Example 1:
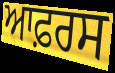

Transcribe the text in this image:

ਆਫ਼ਰਸ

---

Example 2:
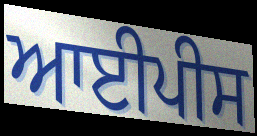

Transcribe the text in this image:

ਆਈਪੀਸ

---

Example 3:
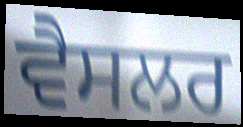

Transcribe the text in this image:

ਵੈਸਲਰ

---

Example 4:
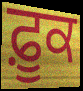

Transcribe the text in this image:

ਫ਼ੂਕ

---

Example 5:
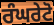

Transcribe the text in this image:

ਰੰਘਰੇਟੋ